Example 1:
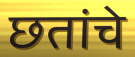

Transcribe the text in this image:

छतांचे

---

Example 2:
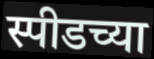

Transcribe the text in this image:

स्पीडच्या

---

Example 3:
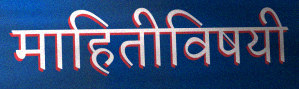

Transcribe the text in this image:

माहितीविषयी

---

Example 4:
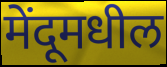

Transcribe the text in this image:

मेंदूमधील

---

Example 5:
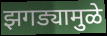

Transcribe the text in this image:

झगड्यामुळे